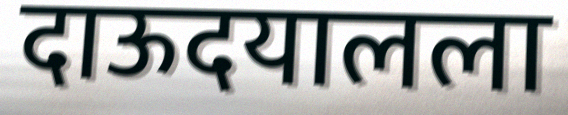
दाऊदयालला